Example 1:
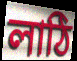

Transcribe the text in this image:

লাঠি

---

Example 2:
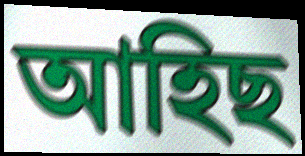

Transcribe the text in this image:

আহিছ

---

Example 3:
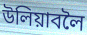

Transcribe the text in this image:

উলিয়াবলৈ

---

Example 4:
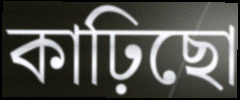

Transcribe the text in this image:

কাঢ়িছো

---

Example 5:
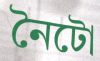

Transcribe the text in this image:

নৈটো